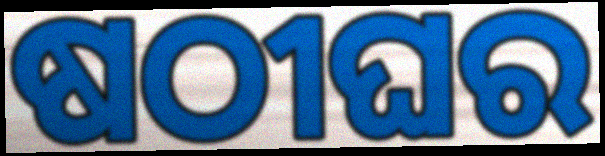
ଷଠୀଘର